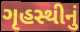
ગૃહસ્થીનું